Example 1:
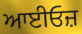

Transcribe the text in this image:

ਆਈਓਜ਼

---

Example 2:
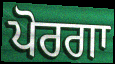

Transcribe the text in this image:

ਪੋਰਗਾ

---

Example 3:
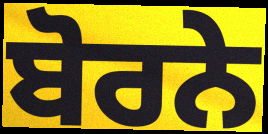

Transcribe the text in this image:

ਬੋਰਨੇ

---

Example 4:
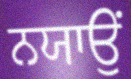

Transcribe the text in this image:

ਨਯਾਉਂ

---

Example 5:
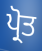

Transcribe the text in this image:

ਪ੍ਰੋਤ